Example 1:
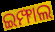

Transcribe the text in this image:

ଇମ୍ଫାଲ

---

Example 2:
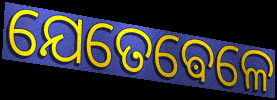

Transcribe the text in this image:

ଯେତେଵେଳେ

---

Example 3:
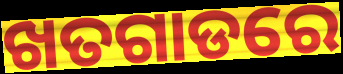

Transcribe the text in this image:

ଖତଗାଡରେ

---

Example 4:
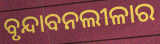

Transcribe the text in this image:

ବୃନ୍ଦାବନଲୀଳାର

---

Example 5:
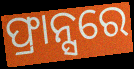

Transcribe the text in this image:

ଫ୍ରାନ୍ସରେ